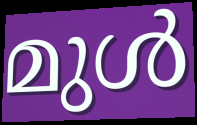
മുൾ